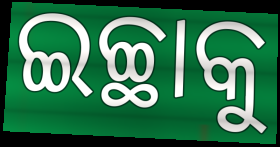
ଇଚ୍ଛାକୁ